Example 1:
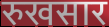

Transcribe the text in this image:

रुखसार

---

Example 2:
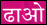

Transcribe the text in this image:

ढाओ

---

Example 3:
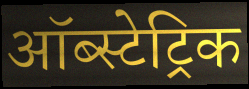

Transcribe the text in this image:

ऑब्स्टेट्रिक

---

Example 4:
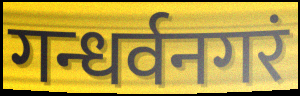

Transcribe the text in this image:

गन्धर्वनगरं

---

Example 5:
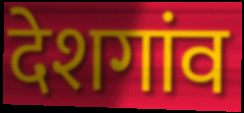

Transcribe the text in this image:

देशगांव